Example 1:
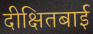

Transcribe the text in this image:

दीक्षितबाई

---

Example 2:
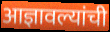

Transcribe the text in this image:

आज्ञावल्यांची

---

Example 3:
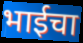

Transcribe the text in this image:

भाईचा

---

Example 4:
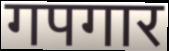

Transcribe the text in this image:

गपगार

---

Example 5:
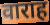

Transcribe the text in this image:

वाराह